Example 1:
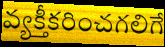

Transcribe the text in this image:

వ్యక్తీకరించగలిగే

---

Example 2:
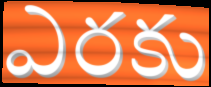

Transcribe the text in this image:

ఎరకు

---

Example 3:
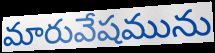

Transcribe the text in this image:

మారువేషమును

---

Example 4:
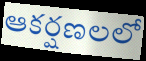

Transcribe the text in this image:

ఆకర్షణలలో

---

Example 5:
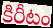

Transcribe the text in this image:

కిరీటం